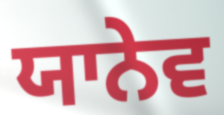
ਯਾਨੇਵ